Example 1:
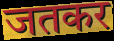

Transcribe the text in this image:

जतकर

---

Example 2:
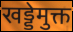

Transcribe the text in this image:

खड्डेमुक्त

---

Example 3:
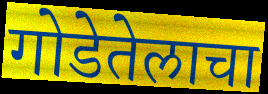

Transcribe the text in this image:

गोडेतेलाचा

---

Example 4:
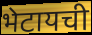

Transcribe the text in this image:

भेटायची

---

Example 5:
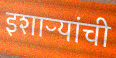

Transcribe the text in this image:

इशाऱ्यांची